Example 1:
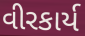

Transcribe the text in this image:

વીરકાર્ય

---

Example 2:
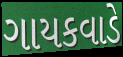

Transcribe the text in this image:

ગાયકવાડે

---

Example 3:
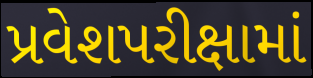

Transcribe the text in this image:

પ્રવેશપરીક્ષામાં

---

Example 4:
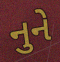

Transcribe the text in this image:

નુને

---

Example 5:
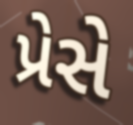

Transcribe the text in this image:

પ્રેસે